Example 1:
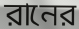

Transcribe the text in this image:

রানের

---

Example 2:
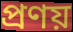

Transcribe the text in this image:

প্রণয়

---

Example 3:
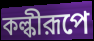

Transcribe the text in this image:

কল্কীরূপে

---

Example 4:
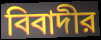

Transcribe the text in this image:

বিবাদীর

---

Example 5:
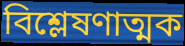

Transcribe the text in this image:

বিশ্লেষণাত্মক